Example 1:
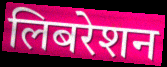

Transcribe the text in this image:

लिबरेशन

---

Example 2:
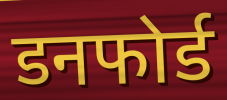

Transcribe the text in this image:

डनफोर्ड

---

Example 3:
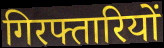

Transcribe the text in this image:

गिरफ्तारियों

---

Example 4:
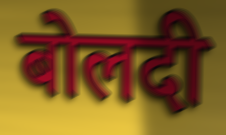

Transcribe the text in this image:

बोलदी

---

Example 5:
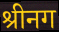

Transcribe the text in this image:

श्रीनग